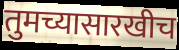
तुमच्यासारखीच